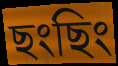
ছংছিং